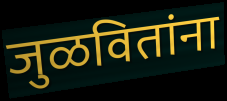
जुळवितांना